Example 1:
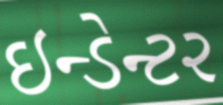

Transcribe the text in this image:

ઇન્ડેન્ટર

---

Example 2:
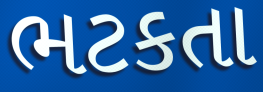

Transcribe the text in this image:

ભટકતા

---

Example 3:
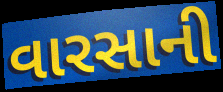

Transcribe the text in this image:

વારસાની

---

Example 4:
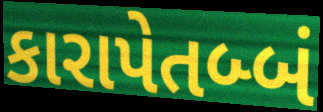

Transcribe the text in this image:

કારાપેતબ્બં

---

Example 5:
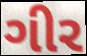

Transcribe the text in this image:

ગીર